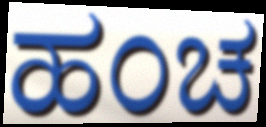
ಹಂಚ